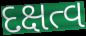
દક્ષત્વ